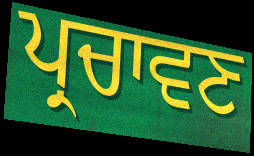
ਪ੍ਰਚਾਵਣ